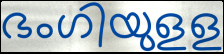
ഭംഗിയുളള